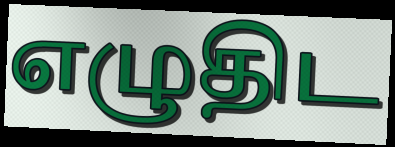
எழுதிட